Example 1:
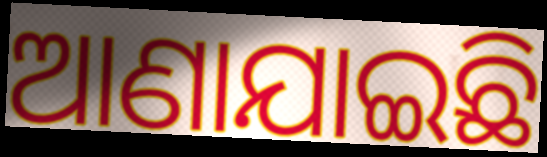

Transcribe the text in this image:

ଆଣାଯାଇଛି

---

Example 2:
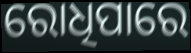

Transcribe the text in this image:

ରୋଧିପାରେ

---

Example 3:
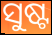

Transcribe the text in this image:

ସୁଷ୍ଟ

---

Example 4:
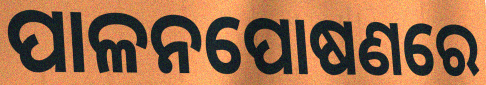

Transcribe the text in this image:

ପାଳନପୋଷଣରେ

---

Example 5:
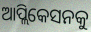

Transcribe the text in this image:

ଆପ୍ଲିକେସନକୁ